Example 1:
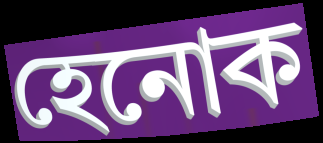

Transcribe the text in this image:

হেনোক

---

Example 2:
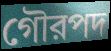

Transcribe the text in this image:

গৌরপদ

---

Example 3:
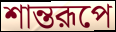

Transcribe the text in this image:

শান্তরূপে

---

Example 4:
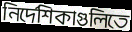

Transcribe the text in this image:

নির্দেশিকাগুলিতে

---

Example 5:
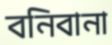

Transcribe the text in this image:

বনিবানা